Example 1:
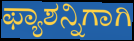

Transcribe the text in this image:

ಫ್ಯಾಶನ್ನಿಗಾಗಿ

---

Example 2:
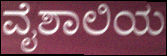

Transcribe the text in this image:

ವೈಶಾಲಿಯ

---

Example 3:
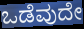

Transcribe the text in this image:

ಒಡೆವುದೇ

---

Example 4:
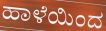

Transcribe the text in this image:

ಹಾಳೆಯಿಂದ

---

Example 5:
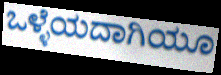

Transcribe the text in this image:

ಒಳ್ಳೆಯದಾಗಿಯೂ